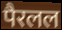
पैरलल